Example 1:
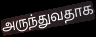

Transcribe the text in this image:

அருந்துவதாக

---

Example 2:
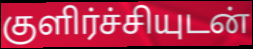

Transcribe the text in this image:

குளிர்ச்சியுடன்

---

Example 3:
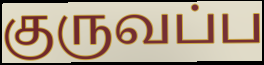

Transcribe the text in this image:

குருவப்ப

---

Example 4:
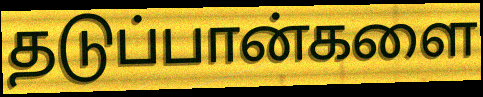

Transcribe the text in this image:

தடுப்பான்களை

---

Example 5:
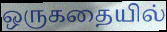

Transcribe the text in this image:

ஒருகதையில்